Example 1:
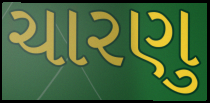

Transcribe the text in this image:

ચારણુ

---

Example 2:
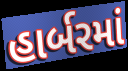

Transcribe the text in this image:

હાર્બરમાં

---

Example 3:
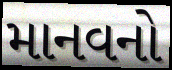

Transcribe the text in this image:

માનવનો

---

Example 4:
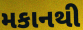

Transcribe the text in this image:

મકાનથી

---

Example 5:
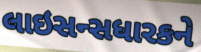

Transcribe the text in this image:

લાઇસન્સધારકને